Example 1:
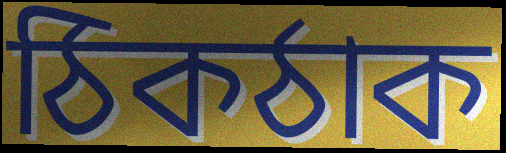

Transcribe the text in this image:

ঠিকঠাক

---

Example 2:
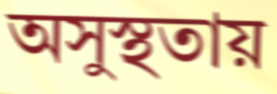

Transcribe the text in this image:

অসুস্থতায়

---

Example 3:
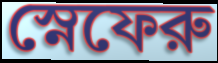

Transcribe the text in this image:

স্নেফেরু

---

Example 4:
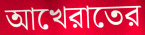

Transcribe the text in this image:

আখেরাতের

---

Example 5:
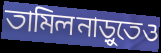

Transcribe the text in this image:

তামিলনাড়ুতেও